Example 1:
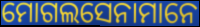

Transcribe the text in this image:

ମୋଗଲସେନାମାନେ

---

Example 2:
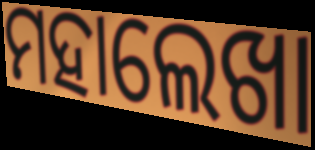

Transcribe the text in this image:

ମହାଲେଖା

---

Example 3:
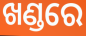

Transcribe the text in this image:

ଖଣ୍ଡରେ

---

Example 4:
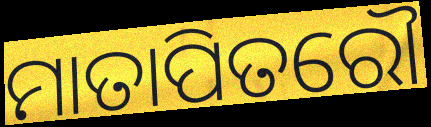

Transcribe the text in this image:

ମାତାପିତରୌ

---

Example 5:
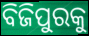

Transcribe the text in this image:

ବିଜିପୁରକୁ